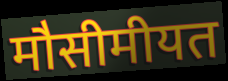
मौसीमीयत